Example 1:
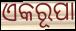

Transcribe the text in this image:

ଏକରୂପା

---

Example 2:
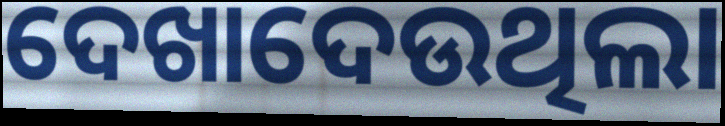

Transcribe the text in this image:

ଦେଖାଦେଉଥିଲା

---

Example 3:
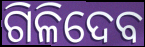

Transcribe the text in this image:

ଗିଳିଦେବ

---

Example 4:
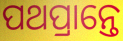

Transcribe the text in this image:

ପଥପ୍ରାନ୍ତେ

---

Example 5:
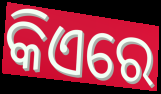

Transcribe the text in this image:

କିଏରେ